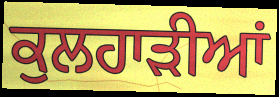
ਕੁਲਹਾੜੀਆਂ